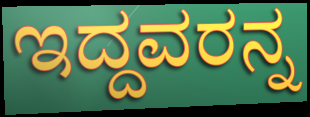
ಇದ್ದವರನ್ನ